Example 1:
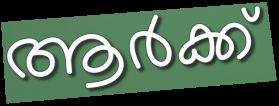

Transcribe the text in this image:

ആർക്ക്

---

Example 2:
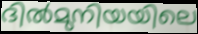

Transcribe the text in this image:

ദിൽമുനിയയിലെ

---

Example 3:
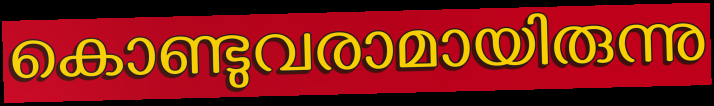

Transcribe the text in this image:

കൊണ്ടുവരാമായിരുന്നു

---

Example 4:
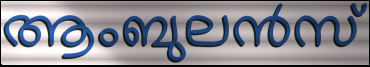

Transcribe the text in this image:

ആംബുലൻസ്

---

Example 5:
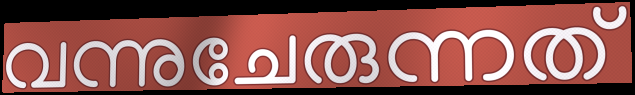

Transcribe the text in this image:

വന്നുചേരുന്നത്